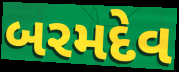
બરમદેવ